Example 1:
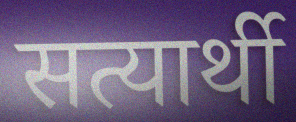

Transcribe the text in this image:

सत्यार्थी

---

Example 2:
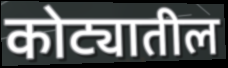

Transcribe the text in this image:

कोट्यातील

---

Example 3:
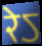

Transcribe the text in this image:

रेऽ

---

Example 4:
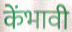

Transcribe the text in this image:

केंभावी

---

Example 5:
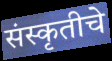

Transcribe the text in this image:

संस्कृतीचे